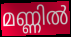
മണ്ണിൽ